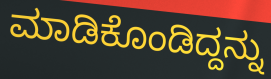
ಮಾಡಿಕೊಂಡಿದ್ದನ್ನು